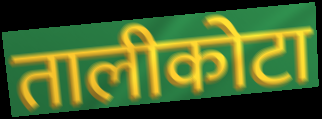
तालीकोटा